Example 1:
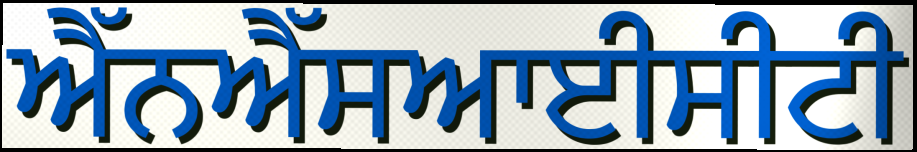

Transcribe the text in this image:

ਐੱਨਐੱਸਆਈਸੀਟੀ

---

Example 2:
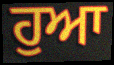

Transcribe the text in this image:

ਹੁਆ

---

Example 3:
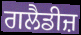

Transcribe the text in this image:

ਗਲੈਡੀਜ਼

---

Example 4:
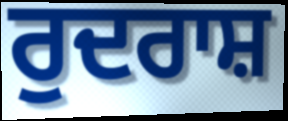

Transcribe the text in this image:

ਰੁਦਰਾਸ਼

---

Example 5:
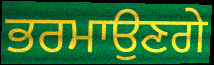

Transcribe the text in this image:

ਭਰਮਾਉਣਗੇ